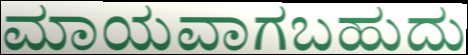
ಮಾಯವಾಗಬಹುದು